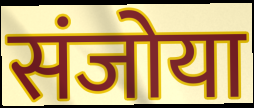
संजोया